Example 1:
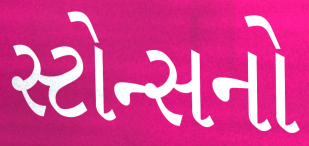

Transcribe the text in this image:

સ્ટોન્સનો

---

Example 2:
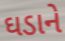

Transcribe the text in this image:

ઘડાને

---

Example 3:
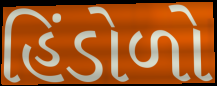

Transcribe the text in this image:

હિંડોળો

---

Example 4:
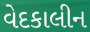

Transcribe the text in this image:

વેદકાલીન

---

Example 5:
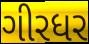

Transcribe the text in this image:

ગીરધર